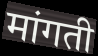
मांगती